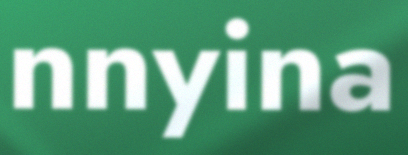
nnyina